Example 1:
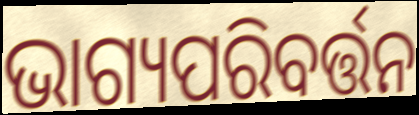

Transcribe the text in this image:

ଭାଗ୍ୟପରିବର୍ତ୍ତନ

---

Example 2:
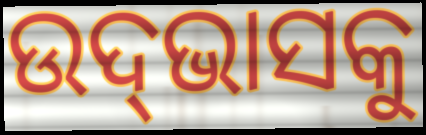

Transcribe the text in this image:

ଉଦ୍‌ଭାସକୁ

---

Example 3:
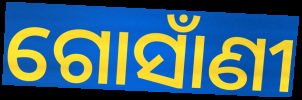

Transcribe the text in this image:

ଗୋସାଁଣୀ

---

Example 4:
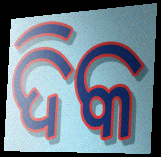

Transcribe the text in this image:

ଦିକ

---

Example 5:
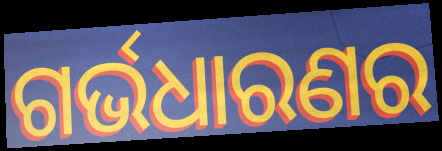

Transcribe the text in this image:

ଗର୍ଭଧାରଣର